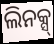
ଲିନକ୍ସ୍